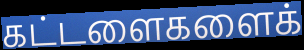
கட்டளைகளைக்